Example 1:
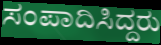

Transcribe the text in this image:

ಸಂಪಾದಿಸಿದ್ದರು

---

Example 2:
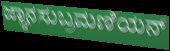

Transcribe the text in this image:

ಜ್ಞಾನಸುಬ್ರಮಣಿಯನ್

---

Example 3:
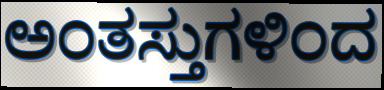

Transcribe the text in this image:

ಅಂತಸ್ತುಗಳಿಂದ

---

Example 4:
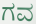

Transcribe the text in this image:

ಗವ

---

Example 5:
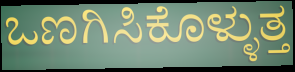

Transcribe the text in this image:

ಒಣಗಿಸಿಕೊಳ್ಳುತ್ತ